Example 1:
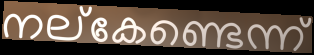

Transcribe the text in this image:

നല്കേണ്ടെന്ന്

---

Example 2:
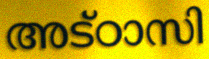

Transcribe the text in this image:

അട്ഠാസി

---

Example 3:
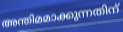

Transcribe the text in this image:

അന്തിമമാക്കുന്നതിന്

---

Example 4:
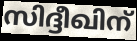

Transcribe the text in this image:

സിദ്ദീഖിന്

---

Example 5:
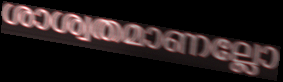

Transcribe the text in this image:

ശാശ്വതമാണല്ലോ